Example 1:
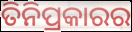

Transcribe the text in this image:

ତିନିପ୍ରକାରର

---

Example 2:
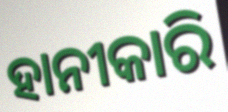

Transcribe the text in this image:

ହାନୀକାରି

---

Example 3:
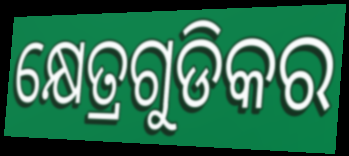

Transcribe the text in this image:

କ୍ଷେତ୍ରଗୁଡିକର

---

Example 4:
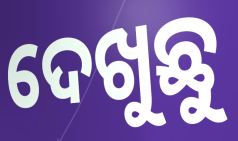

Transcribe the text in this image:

ଦେଖୁଛୁ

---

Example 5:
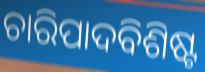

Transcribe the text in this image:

ଚାରିପାଦବିଶିଷ୍ଟ